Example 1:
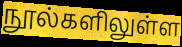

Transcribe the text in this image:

நூல்களிலுள்ள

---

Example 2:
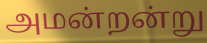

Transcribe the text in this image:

அமன்றன்று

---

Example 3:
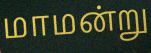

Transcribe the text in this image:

மாமன்று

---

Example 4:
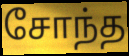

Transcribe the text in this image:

சோந்த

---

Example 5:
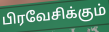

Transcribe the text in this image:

பிரவேசிக்கும்